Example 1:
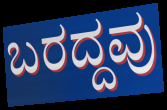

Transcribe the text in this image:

ಬರದ್ದವು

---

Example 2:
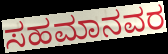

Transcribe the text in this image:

ಸಹಮಾನವರ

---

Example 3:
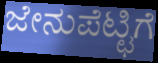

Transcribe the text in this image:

ಜೇನುಪೆಟ್ಟಿಗೆ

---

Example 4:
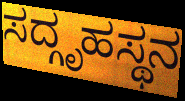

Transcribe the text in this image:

ಸದ್ಗೃಹಸ್ಥನ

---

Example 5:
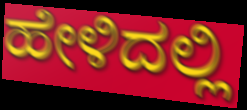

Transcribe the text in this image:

ಹೇಳಿದಲ್ಲಿ